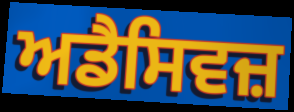
ਅਡੈਸਿਵਜ਼